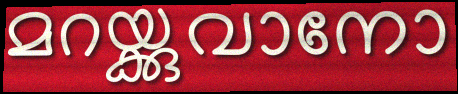
മറയ്ക്കുവാനോ